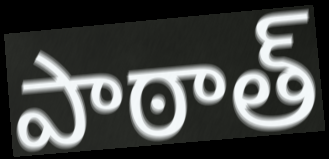
పాఠాత్